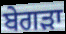
ਬੇਗੜਾ